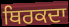
ਥਿਰਕਦਾ